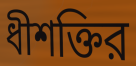
ধীশক্তির